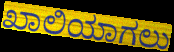
ಖಾಲಿಯಾಗಲು